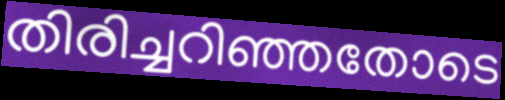
തിരിച്ചറിഞ്ഞതോടെ